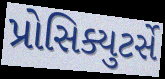
પ્રોસિક્યુટર્સે